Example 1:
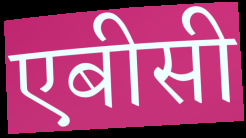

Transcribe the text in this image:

एबीसी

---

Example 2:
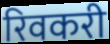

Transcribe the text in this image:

रिवकरी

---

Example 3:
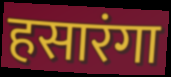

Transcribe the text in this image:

हसारंगा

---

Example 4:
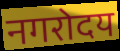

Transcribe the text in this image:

नगरोदय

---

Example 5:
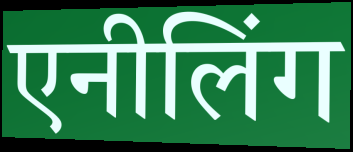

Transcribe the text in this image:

एनीलिंग